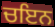
ਚਇਨ